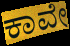
ಕಾವೇ